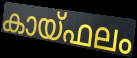
കായ്ഫലം